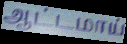
ஆட்டமாய்